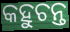
କହୁଚନ୍ତ